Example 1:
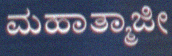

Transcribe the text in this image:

ಮಹಾತ್ಮಾಜೀ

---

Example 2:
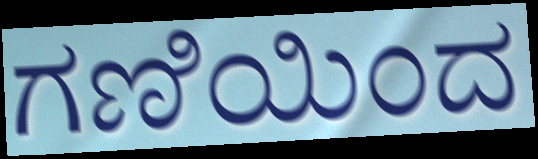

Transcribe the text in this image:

ಗಣಿಯಿಂದ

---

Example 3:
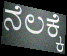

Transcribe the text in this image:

ನೆಲಕ್ಕೆ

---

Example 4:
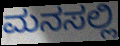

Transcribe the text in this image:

ಮನಸಲ್ಲಿ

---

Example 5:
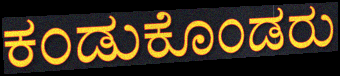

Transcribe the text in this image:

ಕಂಡುಕೊಂಡರು